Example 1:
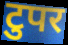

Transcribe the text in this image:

टुपर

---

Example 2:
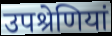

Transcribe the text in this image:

उपश्रेणियां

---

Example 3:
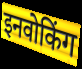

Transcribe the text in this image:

इनवोकिंग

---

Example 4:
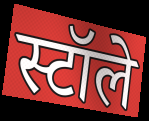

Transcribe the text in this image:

स्टॉले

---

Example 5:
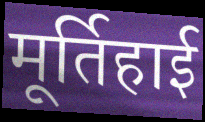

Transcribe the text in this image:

मूर्तिहाई